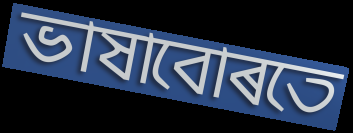
ভাষাবোৰতে